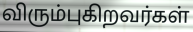
விரும்புகிறவர்கள்